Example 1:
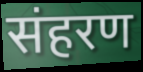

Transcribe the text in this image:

संहरण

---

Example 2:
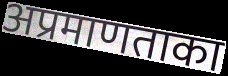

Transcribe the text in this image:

अप्रमाणताका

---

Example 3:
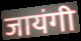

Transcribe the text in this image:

जायंगी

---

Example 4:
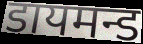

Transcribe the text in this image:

डायमन्ड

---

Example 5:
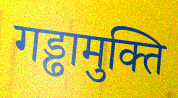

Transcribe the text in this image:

गड्ढामुक्ति